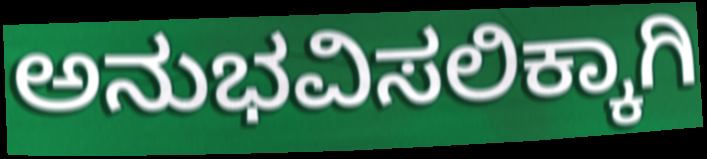
ಅನುಭವಿಸಲಿಕ್ಕಾಗಿ